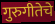
गुरुगीतेचे